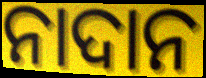
ନାଦାନ